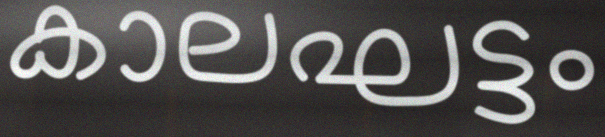
കാലഘട്ടം